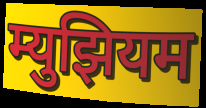
म्युझियम